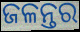
ଜଳନ୍ତର